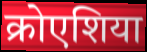
क्रोएशिया